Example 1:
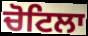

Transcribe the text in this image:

ਚੋਟਿਲਾ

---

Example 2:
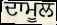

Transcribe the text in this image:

ਦਾਮੂਲ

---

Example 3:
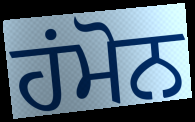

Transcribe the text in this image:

ਹਂਮੋਨ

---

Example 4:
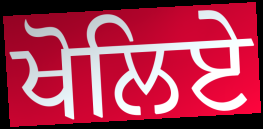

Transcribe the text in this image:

ਖੋਲਿਏ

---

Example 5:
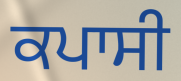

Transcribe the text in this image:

ਕਪਾਸੀ